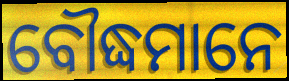
ବୌଦ୍ଧମାନେ